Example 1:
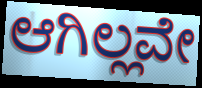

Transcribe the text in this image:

ಆಗಿಲ್ಲವೇ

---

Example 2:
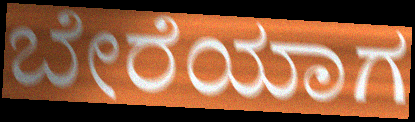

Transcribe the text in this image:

ಬೇರೆಯಾಗ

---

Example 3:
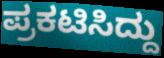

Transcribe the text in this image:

ಪ್ರಕಟಿಸಿದ್ದು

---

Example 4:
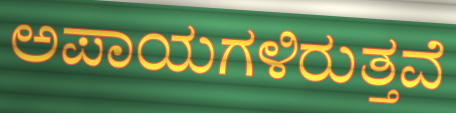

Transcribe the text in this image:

ಅಪಾಯಗಳಿರುತ್ತವೆ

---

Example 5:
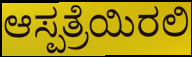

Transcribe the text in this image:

ಆಸ್ಪತ್ರೆಯಿರಲಿ